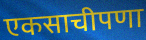
एकसाचीपणा